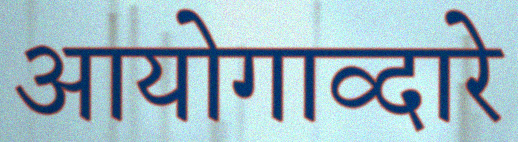
आयोगाव्दारे